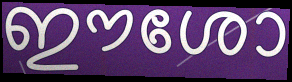
ഈശോ